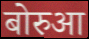
बोरुआ